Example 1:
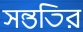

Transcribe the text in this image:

সন্ততির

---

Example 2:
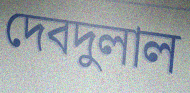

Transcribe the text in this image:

দেবদুলাল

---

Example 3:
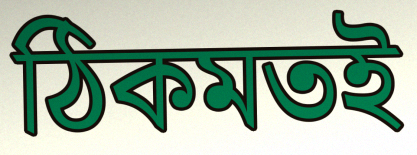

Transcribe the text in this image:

ঠিকমতই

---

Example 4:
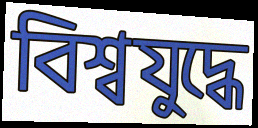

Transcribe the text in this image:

বিশ্বযুদ্ধে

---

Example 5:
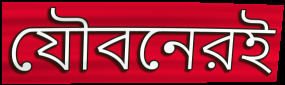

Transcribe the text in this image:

যৌবনেরই